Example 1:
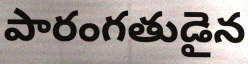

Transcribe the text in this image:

పారంగతుడైన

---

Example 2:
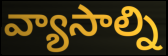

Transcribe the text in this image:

వ్యాసాల్ని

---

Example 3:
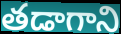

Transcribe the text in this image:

తడాగాని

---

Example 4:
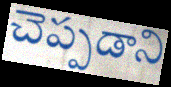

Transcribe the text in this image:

చెప్పడాని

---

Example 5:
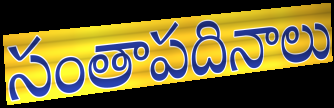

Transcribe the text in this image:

సంతాపదినాలు